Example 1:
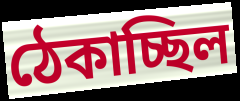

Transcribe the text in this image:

ঠেকাচ্ছিল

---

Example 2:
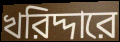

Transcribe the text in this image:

খরিদ্দারে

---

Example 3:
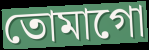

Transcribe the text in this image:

তোমাগো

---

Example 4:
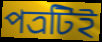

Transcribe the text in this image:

পত্রটিই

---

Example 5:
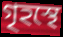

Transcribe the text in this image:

গৃহস্থে